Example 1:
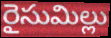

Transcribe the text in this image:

రైసుమిల్లు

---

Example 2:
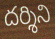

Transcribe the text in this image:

దర్శిని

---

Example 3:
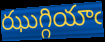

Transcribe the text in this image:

ఝుగ్గియాఁ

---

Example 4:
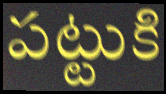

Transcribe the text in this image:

పట్టుకి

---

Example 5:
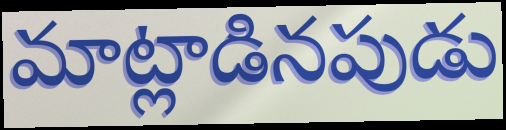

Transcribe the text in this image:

మాట్లాడినపుడు